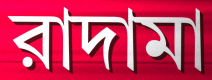
রাদামা